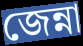
জেন্না